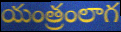
యంత్రంలాగ